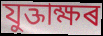
যুক্তাক্ষৰ